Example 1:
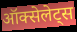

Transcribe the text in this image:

ऑक्सेलेट्स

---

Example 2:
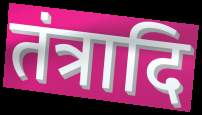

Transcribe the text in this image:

तंत्रादि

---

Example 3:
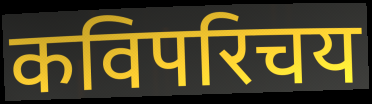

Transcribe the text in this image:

कविपरिचय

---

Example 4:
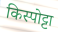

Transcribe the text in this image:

किस्पोट्टा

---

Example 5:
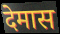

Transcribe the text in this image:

देमास